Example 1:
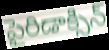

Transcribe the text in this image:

పైరిడాక్సిన్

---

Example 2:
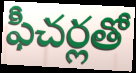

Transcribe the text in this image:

ఫీచర్లతో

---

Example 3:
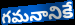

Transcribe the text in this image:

గమనానికే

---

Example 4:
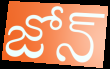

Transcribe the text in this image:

జోన్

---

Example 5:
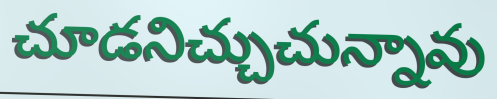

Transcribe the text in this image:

చూడనిచ్చుచున్నావు